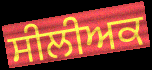
ਸੀਲੀਅਕ